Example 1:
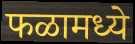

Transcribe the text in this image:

फळामध्ये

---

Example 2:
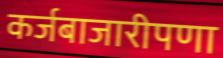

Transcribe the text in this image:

कर्जबाजारीपणा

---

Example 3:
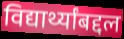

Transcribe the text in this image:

विद्यार्थ्यांबद्दल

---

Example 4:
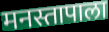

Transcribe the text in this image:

मनस्तापाला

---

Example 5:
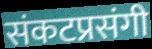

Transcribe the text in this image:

संकटप्रसंगी